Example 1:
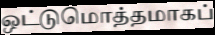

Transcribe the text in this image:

ஒட்டுமொத்தமாகப்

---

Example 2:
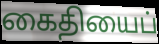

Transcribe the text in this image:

கைதியைப்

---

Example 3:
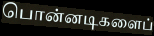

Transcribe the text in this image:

பொன்னடிகளைப்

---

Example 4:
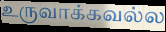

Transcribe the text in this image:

உருவாக்கவல்ல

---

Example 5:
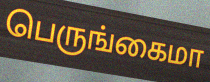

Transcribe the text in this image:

பெருங்கைமா